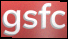
gsfc